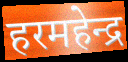
हरमहेन्द्र